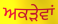
ਅਕੜੇਵਾਂ